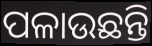
ପଳାଉଛନ୍ତି